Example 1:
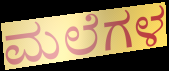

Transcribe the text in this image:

ಮಲೆಗಳ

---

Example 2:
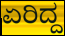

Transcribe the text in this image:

ಏರಿದ್ದ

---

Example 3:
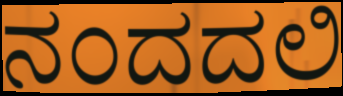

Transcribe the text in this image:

ನಂದದಲಿ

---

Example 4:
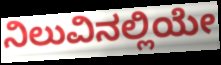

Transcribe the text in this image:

ನಿಲುವಿನಲ್ಲಿಯೇ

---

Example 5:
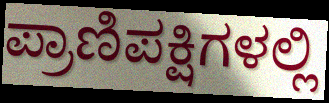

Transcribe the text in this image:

ಪ್ರಾಣಿಪಕ್ಷಿಗಳಲ್ಲಿ